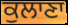
ਕੁਲਾਣਾ